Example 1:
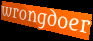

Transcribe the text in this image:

wrongdoer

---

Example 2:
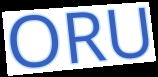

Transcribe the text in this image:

ORU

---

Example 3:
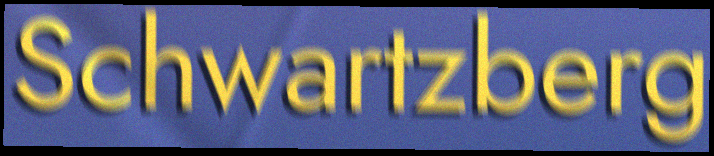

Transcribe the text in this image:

Schwartzberg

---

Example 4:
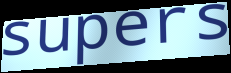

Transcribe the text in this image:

supers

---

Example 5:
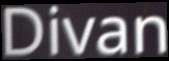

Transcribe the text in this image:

Divan